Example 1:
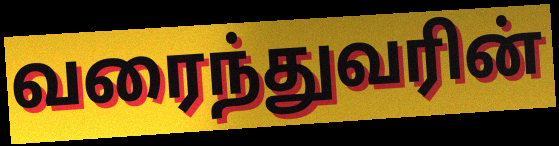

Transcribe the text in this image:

வரைந்துவரின்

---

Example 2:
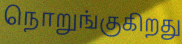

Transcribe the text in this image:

நொறுங்குகிறது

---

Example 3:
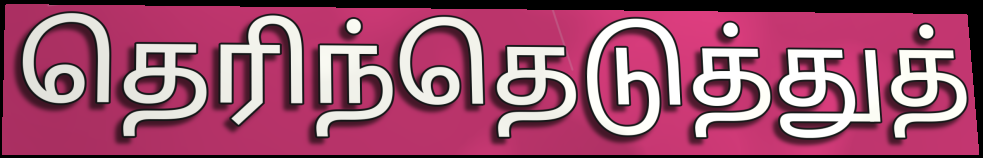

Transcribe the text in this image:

தெரிந்தெடுத்துத்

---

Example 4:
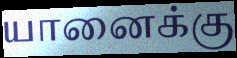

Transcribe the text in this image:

யானைக்கு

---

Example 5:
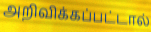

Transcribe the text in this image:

அறிவிக்கப்பட்டால்